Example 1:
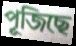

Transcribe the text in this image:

পূজিছে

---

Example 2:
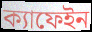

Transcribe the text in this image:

ক্যাফেইন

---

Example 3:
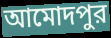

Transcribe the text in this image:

আমোদপুর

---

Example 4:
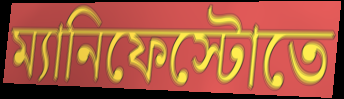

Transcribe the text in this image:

ম্যানিফেস্টোতে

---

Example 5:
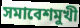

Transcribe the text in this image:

সমাবেশমুখী